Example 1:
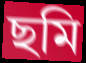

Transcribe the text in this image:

ছমি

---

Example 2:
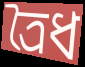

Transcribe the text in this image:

ত্রৈধ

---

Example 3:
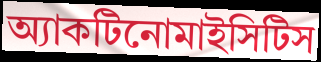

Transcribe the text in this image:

অ্যাকটিনোমাইসিটিস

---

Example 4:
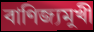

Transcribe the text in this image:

বাণিজ্যমুখী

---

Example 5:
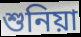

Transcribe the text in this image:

শুনিয়া